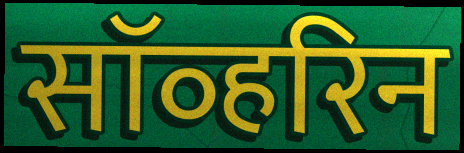
सॉव्हरिन